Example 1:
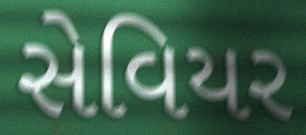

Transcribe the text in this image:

સેવિયર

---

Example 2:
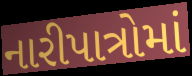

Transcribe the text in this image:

નારીપાત્રોમાં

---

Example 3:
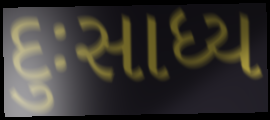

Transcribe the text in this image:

દુઃસાધ્ય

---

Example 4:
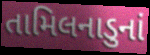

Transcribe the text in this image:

તામિલનાડુનાં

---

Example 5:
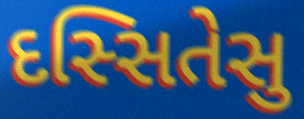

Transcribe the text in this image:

દસ્સિતેસુ